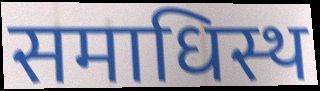
समाधिस्थ